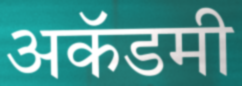
अकॅडमी